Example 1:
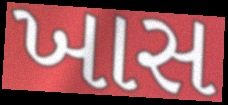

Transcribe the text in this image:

ખાસ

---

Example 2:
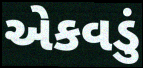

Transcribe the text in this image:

એકવડું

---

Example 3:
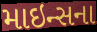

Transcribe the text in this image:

માઇન્સના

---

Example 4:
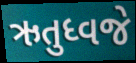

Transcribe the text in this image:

ઋતુધ્વજે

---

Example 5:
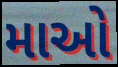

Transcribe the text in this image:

માઓ